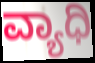
ವ್ಯಾಧಿ